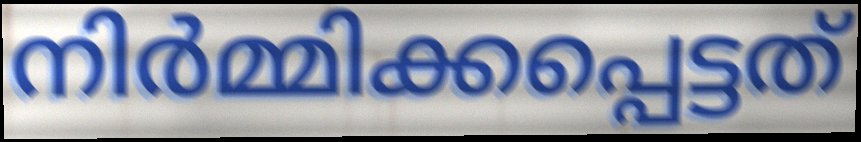
നിർമ്മിക്കപ്പെട്ടത്